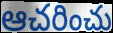
ఆచరించు